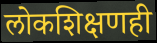
लोकशिक्षणही